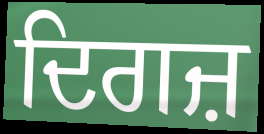
ਦਿਗਜ਼